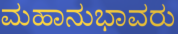
ಮಹಾನುಭಾವರು